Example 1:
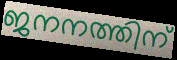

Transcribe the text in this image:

ജനനത്തിന്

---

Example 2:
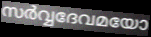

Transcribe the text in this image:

സർവ്വദേവമയോ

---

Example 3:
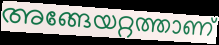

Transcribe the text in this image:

അങ്ങേയറ്റത്താണ്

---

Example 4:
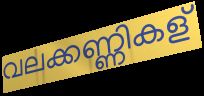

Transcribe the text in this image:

വലക്കണ്ണികള്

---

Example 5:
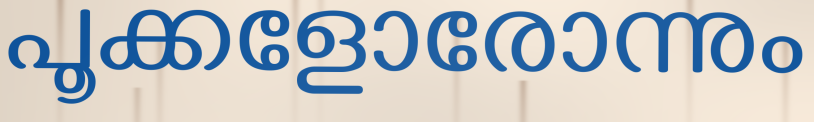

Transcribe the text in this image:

പൂക്കളോരോന്നും